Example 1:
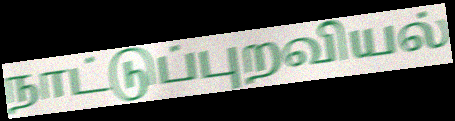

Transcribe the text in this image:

நாட்டுப்புறவியல்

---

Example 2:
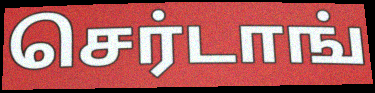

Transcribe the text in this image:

செர்டாங்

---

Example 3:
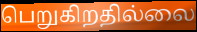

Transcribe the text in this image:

பெறுகிறதில்லை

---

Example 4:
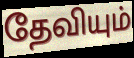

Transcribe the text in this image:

தேவியும்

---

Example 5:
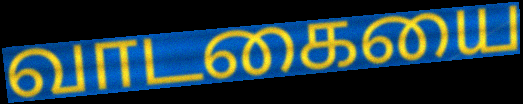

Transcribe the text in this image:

வாடகையை